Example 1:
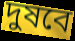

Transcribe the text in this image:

দুষবে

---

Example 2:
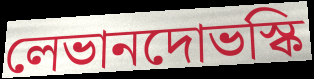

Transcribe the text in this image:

লেভানদোভস্কি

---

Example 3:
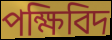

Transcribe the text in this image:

পক্ষিবিদ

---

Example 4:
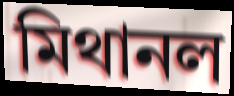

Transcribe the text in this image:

মিথানল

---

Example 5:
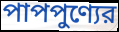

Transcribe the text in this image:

পাপপুণ্যের